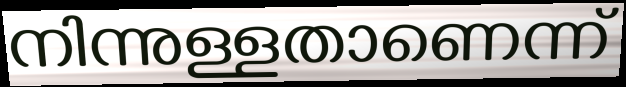
നിന്നുള്ളതാണെന്ന്